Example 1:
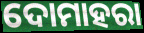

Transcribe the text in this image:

ଦୋମାହରା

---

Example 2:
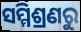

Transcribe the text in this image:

ସମ୍ମିଶ୍ରଣରୁ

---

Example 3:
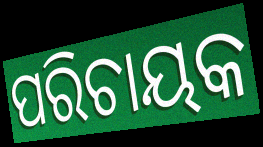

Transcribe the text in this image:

ପରିଚାୟକ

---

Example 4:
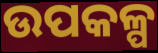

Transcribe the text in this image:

ଉପକଳ୍ପ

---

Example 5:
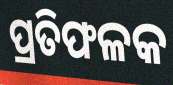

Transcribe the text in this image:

ପ୍ରତିଫଳକ